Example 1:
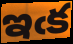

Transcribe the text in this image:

ఇఁక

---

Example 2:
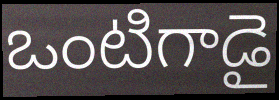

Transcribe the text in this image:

ఒంటిగాడై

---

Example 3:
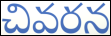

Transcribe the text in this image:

చివరన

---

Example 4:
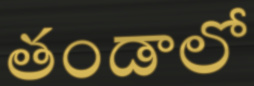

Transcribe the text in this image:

తండాలో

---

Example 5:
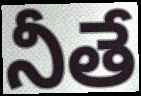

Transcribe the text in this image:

నీతే